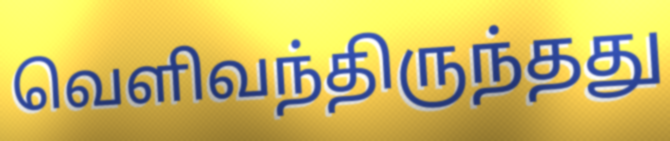
வெளிவந்திருந்தது